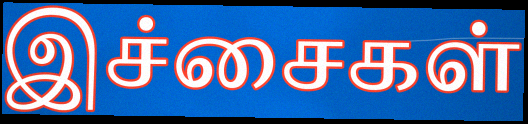
இச்சைகள்